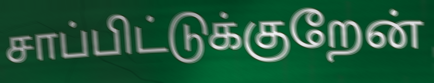
சாப்பிட்டுக்குறேன்